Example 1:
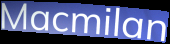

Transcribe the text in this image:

Macmilan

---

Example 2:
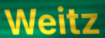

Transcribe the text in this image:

Weitz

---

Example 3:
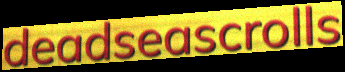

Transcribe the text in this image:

deadseascrolls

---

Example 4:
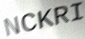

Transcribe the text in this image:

NCKRI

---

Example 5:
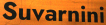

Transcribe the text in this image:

Suvarnini